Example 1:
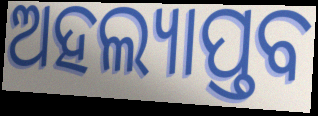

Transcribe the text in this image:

ଅହଲ୍ୟାପ୍ତବ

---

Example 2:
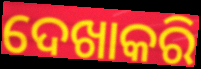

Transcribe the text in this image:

ଦେଖାକରି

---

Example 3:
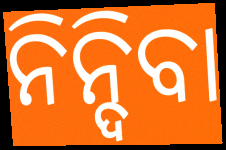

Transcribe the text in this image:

ନିନ୍ଦିବା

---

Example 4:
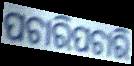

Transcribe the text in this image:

ପଚାରିପଚାରି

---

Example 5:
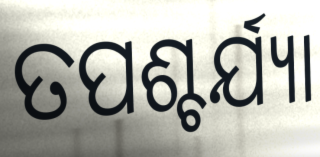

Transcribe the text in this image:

ତପଶ୍ଚର୍ଯ୍ୟା